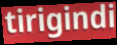
tirigindi